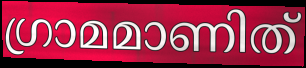
ഗ്രാമമാണിത്